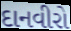
દાનવીરો